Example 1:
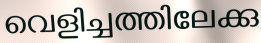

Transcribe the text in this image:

വെളിച്ചത്തിലേക്കു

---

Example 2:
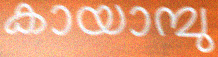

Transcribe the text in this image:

കായാമ്പു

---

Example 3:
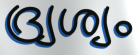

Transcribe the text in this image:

ദ്ര്യശ്യം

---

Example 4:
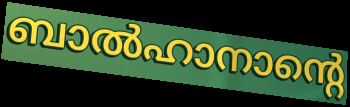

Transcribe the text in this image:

ബാൽഹാനാന്റെ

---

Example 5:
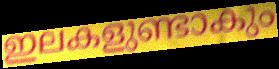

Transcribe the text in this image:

ഇലകളുണ്ടാകും